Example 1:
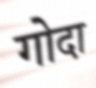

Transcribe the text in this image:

गोदा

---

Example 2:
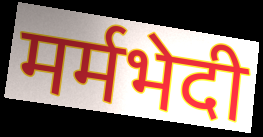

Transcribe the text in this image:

मर्मभेदी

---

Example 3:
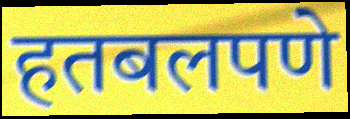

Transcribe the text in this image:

हतबलपणे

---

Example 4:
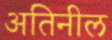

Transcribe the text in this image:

अतिनील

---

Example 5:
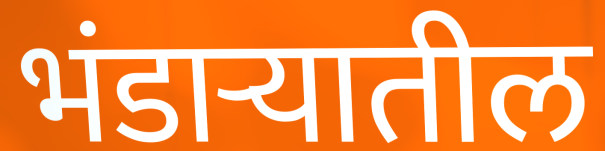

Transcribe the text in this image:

भंडाऱ्यातील